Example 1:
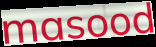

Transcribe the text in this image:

masood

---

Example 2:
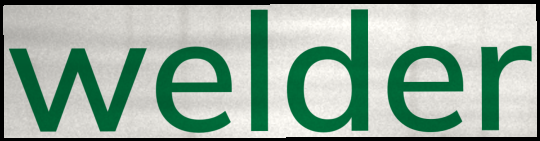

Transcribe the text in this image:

welder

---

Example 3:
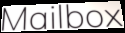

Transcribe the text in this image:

Mailbox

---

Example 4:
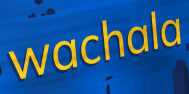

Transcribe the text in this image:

wachala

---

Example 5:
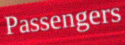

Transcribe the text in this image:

Passengers